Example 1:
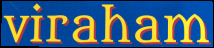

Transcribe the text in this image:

viraham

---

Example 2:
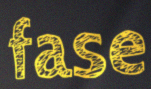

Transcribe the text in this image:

fase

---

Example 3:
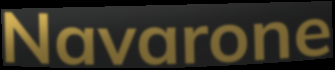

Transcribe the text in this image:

Navarone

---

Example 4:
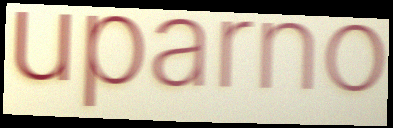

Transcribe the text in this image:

uparno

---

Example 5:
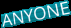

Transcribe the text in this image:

ANYONE